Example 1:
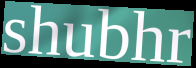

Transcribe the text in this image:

shubhr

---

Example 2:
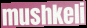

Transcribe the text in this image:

mushkeli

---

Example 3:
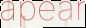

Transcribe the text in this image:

apear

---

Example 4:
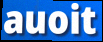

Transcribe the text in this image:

auoit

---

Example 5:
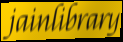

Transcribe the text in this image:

jainlibrary